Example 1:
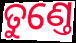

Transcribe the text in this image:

ତୁଣ୍ତେ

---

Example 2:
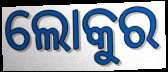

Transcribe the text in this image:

ଲୋକୁର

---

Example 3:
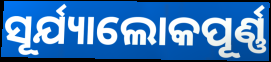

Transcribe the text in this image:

ସୂର୍ଯ୍ୟାଲୋକପୂର୍ଣ୍ଣ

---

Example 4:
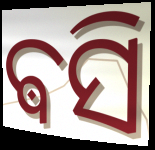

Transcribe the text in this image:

ଵସି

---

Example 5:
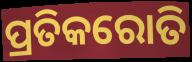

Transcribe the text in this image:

ପ୍ରତିକରୋତି